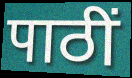
पाठीं